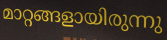
മാറ്റങ്ങളായിരുന്നു